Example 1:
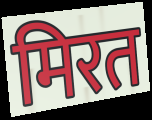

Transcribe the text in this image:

मिरत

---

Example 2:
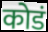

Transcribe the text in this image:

कोडं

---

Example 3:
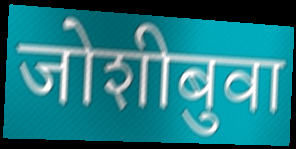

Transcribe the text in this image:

जोशीबुवा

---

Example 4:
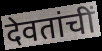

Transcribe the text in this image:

देवतांचीं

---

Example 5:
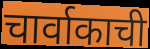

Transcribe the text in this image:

चार्वाकाची